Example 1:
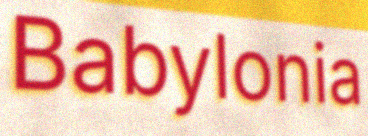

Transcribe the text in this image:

Babylonia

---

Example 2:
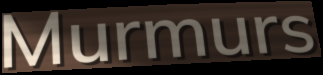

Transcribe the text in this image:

Murmurs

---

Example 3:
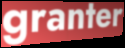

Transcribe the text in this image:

granter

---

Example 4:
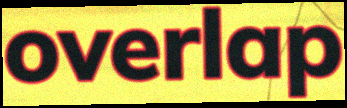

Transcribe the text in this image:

overlap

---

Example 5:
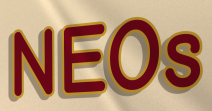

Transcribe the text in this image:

NEOs